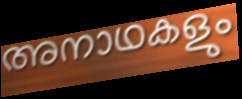
അനാഥകളും